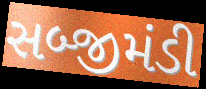
સબ્જીમંડી